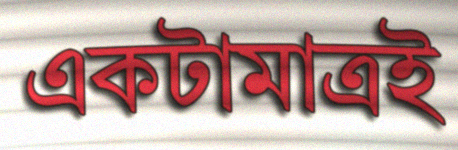
একটামাত্রই